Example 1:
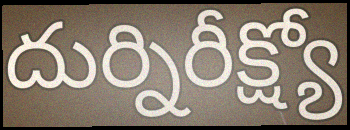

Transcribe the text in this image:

దుర్నిరీక్ష్యో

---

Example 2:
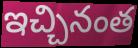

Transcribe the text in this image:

ఇచ్చినంత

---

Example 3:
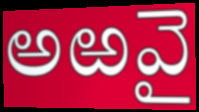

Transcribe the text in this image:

అఱవై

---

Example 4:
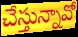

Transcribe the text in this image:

చేస్తున్నావో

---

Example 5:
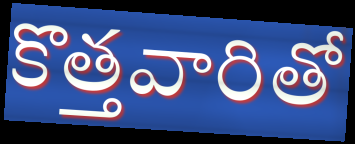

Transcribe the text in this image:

కొత్తవారితో